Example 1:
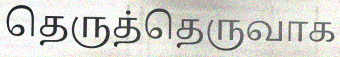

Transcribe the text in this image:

தெருத்தெருவாக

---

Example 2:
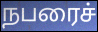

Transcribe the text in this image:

நபரைச்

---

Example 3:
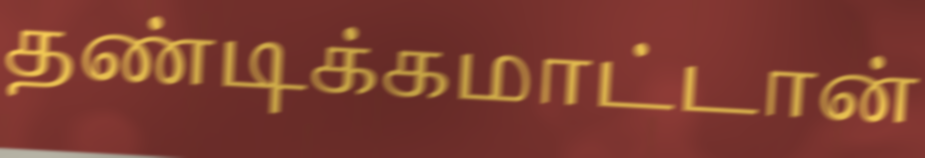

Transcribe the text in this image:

தண்டிக்கமாட்டான்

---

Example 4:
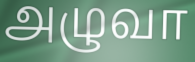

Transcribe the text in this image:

அழுவா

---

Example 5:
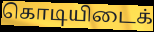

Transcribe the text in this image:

கொடியிடைக்